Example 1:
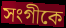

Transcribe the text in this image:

সংগীকে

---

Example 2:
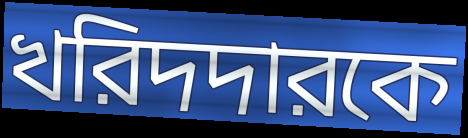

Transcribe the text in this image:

খরিদদারকে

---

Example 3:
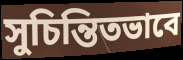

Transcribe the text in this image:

সুচিন্তিতভাবে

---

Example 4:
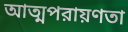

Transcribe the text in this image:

আত্মপরায়ণতা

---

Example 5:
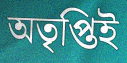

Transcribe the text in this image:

অতৃপ্তিই